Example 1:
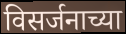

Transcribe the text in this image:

विसर्जनाच्या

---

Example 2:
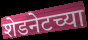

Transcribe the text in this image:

शेडनेटच्या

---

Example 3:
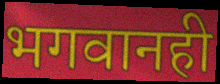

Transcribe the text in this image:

भगवानही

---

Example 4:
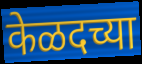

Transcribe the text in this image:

केळदच्या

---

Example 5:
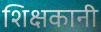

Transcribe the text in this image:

शिक्षकानी